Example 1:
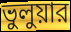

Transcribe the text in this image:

ভুলুয়ার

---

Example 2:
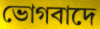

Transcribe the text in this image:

ভোগবাদে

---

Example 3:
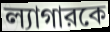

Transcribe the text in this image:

ল্যাগারকে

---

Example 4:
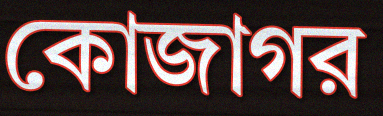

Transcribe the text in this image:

কোজাগর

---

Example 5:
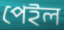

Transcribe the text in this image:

পেইল